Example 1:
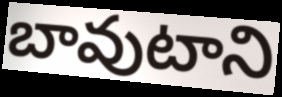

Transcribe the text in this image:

బావుటాని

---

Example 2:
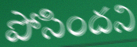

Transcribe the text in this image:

పోసిందని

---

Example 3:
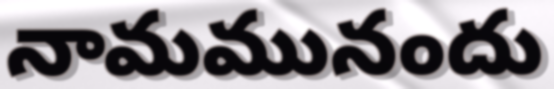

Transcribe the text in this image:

నామమునందు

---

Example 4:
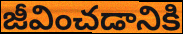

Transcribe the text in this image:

జీవించడానికి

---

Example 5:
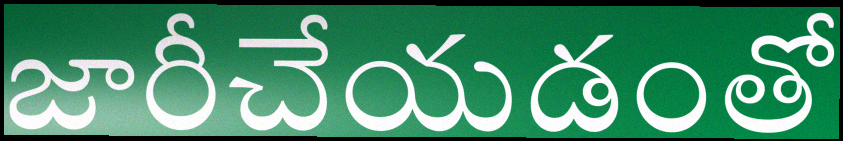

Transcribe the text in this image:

జారీచేయడంతో